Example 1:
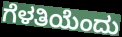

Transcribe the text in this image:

ಗೆಳತಿಯೆಂದು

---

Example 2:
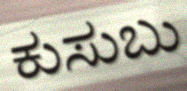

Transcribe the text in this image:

ಕುಸುಬು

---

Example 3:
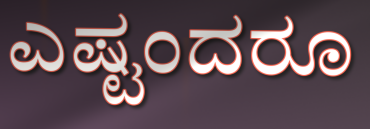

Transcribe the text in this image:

ಎಷ್ಟಂದರೂ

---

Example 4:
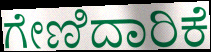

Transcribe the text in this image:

ಗೇಣಿದಾರಿಕೆ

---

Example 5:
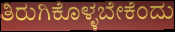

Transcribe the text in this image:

ತಿರುಗಿಕೊಳ್ಳಬೇಕೆಂದು